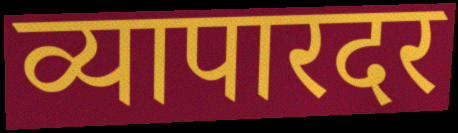
व्यापारदर